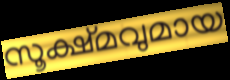
സൂക്ഷ്മവുമായ